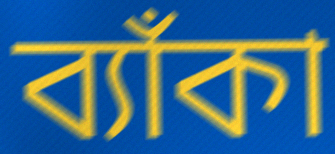
ব্যাঁকা